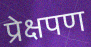
प्रेक्षपण